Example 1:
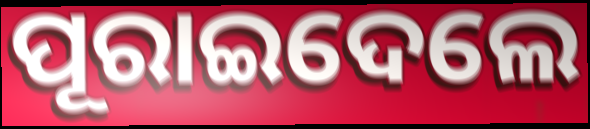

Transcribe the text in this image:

ପୂରାଇଦେଲେ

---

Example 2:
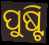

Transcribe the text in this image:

ପୁଷ୍ଟି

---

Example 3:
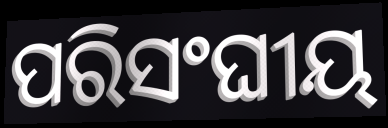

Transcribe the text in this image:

ପରିସଂଘୀୟ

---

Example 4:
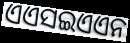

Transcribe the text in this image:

ଏଏସଇଏଏନ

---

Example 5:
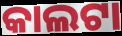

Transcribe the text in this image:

କାଲଟା